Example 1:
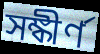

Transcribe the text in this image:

সঙ্কীর্ণ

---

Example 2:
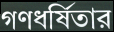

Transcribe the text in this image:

গণধর্ষিতার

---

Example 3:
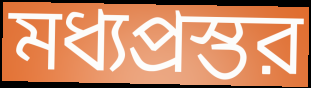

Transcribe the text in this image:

মধ্যপ্রস্তর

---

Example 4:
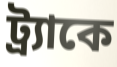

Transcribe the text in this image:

ট্র্যাকে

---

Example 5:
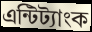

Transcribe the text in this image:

এন্টিট্যাংক